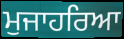
ਮੁਜਾਹਰਿਆ